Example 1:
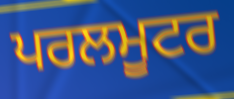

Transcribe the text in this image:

ਪਰਲਮੂਟਰ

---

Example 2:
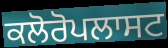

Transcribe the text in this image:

ਕਲੋਰੋਪਲਾਸਟ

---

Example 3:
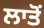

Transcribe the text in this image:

ਲਾਤੋਂ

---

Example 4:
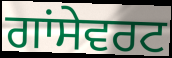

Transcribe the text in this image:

ਗਾਂਸੇਵਰਟ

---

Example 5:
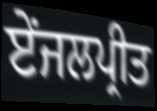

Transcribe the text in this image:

ਏਂਜਲਪ੍ਰੀਤ